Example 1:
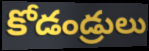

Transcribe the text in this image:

కోడండ్రులు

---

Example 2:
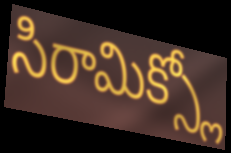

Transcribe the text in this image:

సిరామిక్స్లో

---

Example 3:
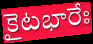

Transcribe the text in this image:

కైటభారేః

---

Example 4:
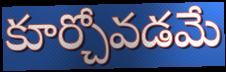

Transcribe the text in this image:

కూర్చోవడమే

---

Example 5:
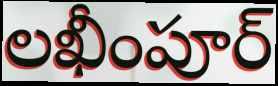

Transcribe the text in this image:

లఖీంపూర్